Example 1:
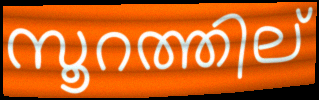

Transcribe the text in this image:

സൂറത്തില്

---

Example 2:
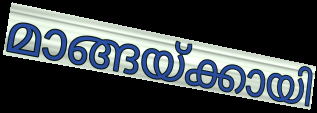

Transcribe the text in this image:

മാങ്ങയ്ക്കായി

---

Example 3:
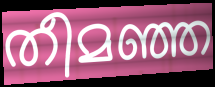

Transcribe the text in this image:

തീമഞ്ഞ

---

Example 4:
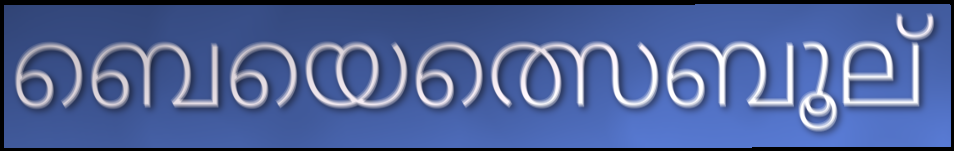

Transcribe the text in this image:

ബെയെത്സെബൂല്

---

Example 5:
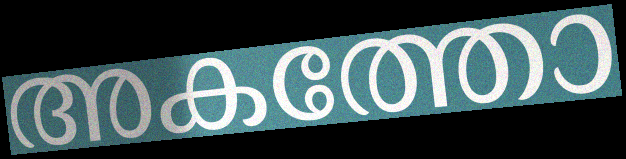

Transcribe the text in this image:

അകത്തോ